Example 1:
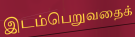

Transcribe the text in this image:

இடம்பெறுவதைக்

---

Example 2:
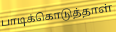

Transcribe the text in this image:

பாடிக்கொடுத்தாள்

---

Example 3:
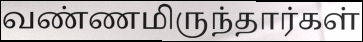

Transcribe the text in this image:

வண்ணமிருந்தார்கள்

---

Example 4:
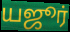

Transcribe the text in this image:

யஜூர்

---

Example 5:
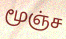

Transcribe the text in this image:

மூஞ்ச